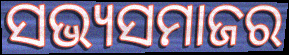
ସଭ୍ୟସମାଜର